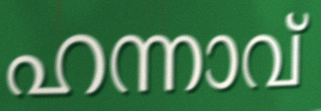
ഹന്നാവ്